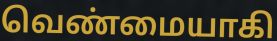
வெண்மையாகி